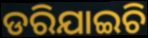
ଡରିଯାଇଚି